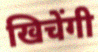
खिचेंगी